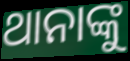
ଥାନାଙ୍କୁ